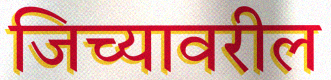
जिच्यावरील